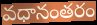
వధానంతరం